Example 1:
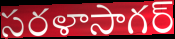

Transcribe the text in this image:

సరళాసాగర్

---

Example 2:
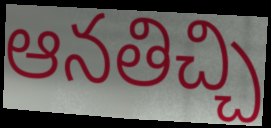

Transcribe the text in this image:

ఆనతిచ్చి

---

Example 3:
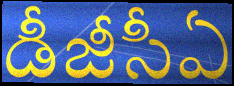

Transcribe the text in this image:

డీజీసీఏ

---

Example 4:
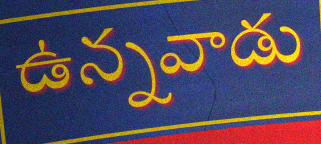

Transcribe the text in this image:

ఉన్నవాడు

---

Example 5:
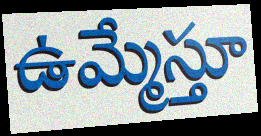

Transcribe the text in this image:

ఉమ్మేస్తూ